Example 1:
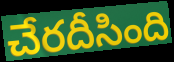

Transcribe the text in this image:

చేరదీసింది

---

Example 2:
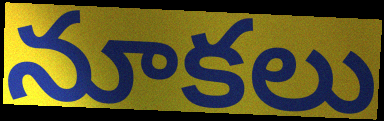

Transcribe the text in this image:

నూకలు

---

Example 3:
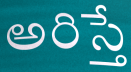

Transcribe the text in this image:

అరిస్తే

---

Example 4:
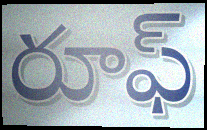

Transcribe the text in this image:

రూఫ్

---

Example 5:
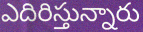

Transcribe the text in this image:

ఎదిరిస్తున్నారు